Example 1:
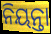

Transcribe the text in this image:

ନିୟନ୍ତା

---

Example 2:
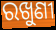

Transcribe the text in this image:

ରଖୁଣୀ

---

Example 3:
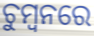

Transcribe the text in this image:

ଚୁମ୍ୱନରେ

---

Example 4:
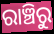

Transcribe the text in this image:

ରାଞ୍ଚିରୁ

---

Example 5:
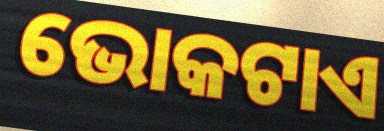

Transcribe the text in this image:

ଭୋକଟାଏ